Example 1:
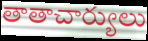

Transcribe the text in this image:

తాతాచార్యులు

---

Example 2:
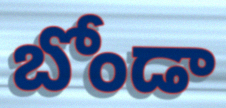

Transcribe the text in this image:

బోండా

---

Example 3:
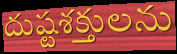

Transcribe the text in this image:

దుష్టశక్తులను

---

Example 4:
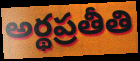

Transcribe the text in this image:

అర్థప్రతీతి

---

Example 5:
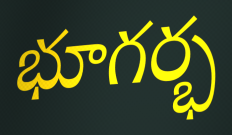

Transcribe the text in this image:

భూగర్భ